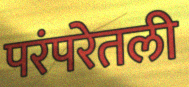
परंपरेतली